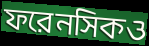
ফরেনসিকও